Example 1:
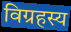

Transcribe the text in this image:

विग्रहस्य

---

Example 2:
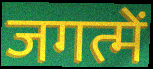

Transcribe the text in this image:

जगत्में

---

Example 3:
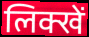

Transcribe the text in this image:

लिक्खें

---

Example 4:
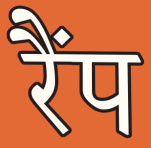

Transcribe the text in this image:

रैंप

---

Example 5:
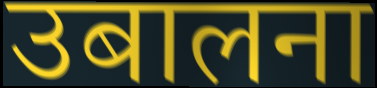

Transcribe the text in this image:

उबालना